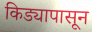
किड्यापासून